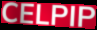
CELPIP